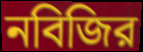
নবিজির